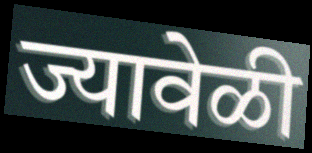
ज्यावेळी